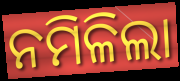
ନମିଳିଲା